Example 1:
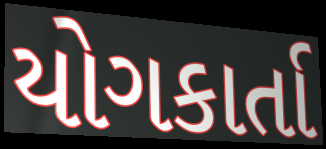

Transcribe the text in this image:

યોગકાર્તા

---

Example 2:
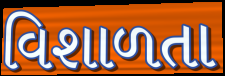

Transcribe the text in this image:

વિશાળતા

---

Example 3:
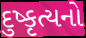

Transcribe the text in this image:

દુષ્કૃત્યનો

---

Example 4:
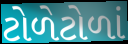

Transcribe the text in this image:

ટોળેટોળાં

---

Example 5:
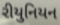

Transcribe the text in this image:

રીયુનિયન